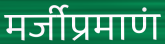
मर्जीप्रमाणं